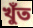
খুঁত